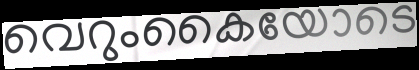
വെറുംകൈയോടെ